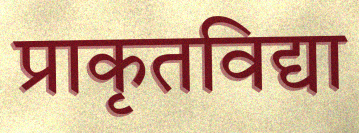
प्राकृतविद्या